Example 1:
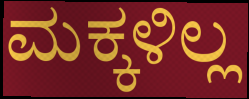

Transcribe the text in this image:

ಮಕ್ಕಳಿಲ್ಲ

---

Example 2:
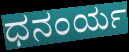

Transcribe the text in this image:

ಧನಂರ್ಯ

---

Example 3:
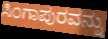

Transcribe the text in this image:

ಸಿಂಗಾಪುರವನ್ನು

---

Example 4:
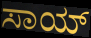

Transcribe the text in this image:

ಸಾಯ್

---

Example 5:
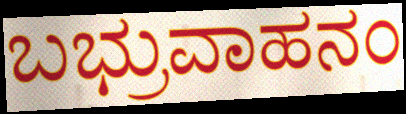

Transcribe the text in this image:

ಬಭ್ರುವಾಹನಂ